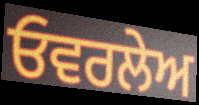
ਓਵਰਲੇਅ